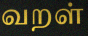
வறள்